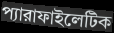
প্যারাফাইলেটিক